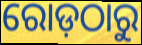
ରୋଡ଼ଠାରୁ